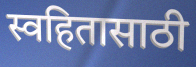
स्वहितासाठी